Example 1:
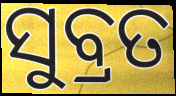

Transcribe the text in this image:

ସୁବ୍ରତ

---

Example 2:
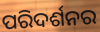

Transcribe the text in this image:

ପରିଦର୍ଶନର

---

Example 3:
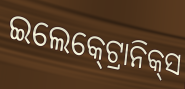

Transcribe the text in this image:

ଇଲେକ୍‍ଟ୍ରୋନିକ୍‍ସ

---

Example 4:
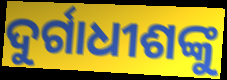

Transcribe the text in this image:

ଦୁର୍ଗାଧୀଶଙ୍କୁ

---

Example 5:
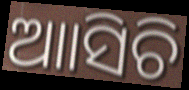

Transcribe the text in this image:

ଆାସିଚି